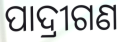
ପାଦ୍ରୀଗଣ